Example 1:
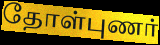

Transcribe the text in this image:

தோள்புணர்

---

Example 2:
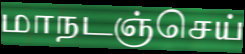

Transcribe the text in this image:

மாநடஞ்செய்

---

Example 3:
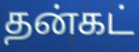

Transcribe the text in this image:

தன்கட்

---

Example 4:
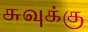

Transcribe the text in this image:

சுவுக்கு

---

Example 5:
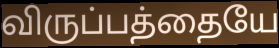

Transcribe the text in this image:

விருப்பத்தையே